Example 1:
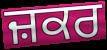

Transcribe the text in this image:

ਜ਼ਕਰ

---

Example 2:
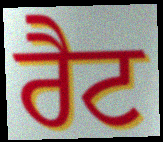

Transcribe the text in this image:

ਰੈਟ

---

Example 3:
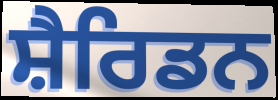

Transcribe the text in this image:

ਸ਼ੈਰਿਡਨ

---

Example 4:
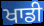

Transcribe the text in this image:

ਖਾਡੀ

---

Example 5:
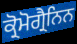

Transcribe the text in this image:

ਕ੍ਰੋਮੋਗ੍ਰੈਨਿਨ